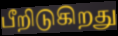
பீறிடுகிறது